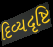
દિવ્યદૃષ્ટિ